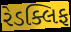
રેડક્લિફ